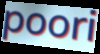
poori